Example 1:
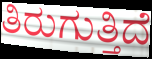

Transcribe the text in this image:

ತಿರುಗುತ್ತಿದೆ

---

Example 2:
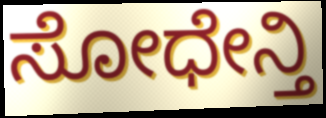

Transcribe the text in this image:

ಸೋಧೇನ್ತಿ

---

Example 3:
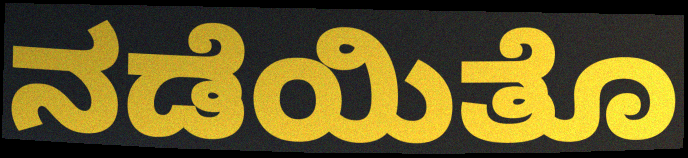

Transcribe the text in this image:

ನಡೆಯಿತೊ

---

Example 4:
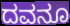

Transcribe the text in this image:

ದವನೂ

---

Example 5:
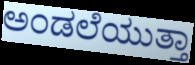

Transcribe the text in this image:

ಅಂಡಲೆಯುತ್ತಾ